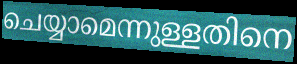
ചെയ്യാമെന്നുള്ളതിനെ